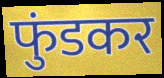
फुंडकर